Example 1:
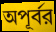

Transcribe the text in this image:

অপূর্বর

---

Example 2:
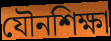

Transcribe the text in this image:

যৌনশিক্ষা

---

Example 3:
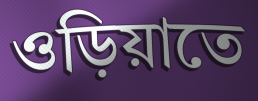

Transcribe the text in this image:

ওড়িয়াতে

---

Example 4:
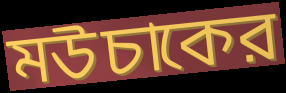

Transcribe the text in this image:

মউচাকের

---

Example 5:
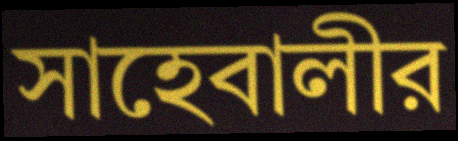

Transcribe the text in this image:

সাহেবালীর